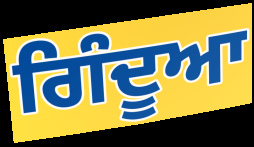
ਗਿੰਦੂਆ